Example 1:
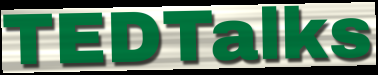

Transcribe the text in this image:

TEDTalks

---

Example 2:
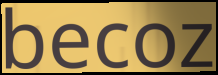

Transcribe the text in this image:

becoz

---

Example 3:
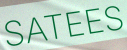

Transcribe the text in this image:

SATEES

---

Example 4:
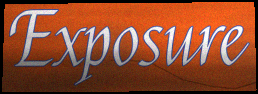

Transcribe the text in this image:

Exposure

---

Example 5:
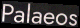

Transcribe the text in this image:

Palaeos